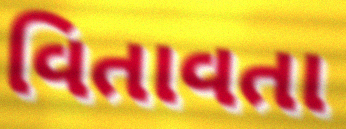
વિતાવતા